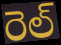
రెల్